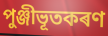
পুঞ্জীভূতকৰণ